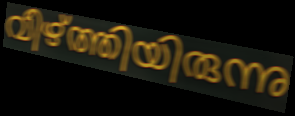
വീഴ്ത്തിയിരുന്നു